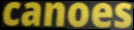
canoes